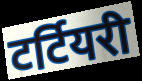
टर्टियरी